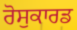
ਰੋਸੁਕਾਰਡ